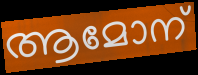
ആമോന്